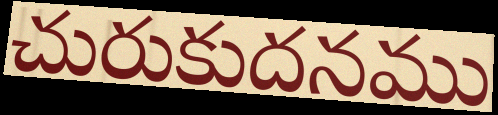
చురుకుదనము